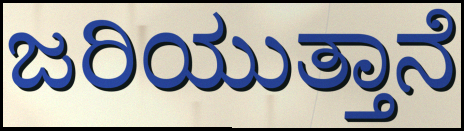
ಜರಿಯುತ್ತಾನೆ